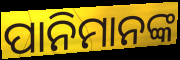
ପାନିମାନଙ୍କ